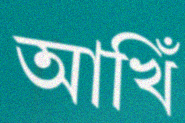
আখিঁ